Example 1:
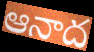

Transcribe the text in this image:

ఆనాద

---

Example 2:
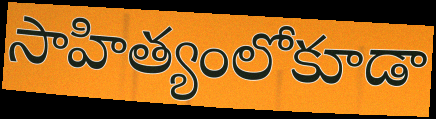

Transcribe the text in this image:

సాహిత్యంలోకూడా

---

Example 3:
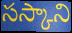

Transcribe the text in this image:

సస్కాని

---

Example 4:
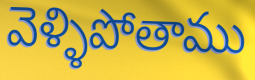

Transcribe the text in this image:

వెళ్ళిపోతాము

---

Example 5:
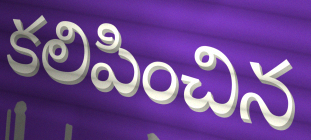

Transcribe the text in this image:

కలిపించిన